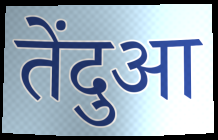
तेंदुआ